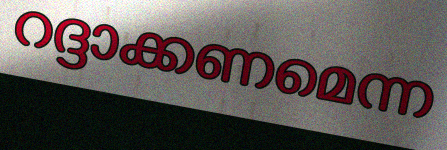
റദ്ദാക്കണമെന്ന